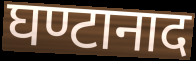
घण्टानाद